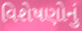
વિશેષણોનું